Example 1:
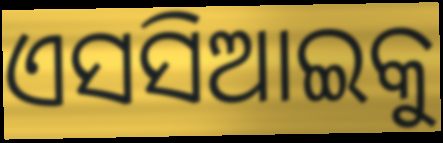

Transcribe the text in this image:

ଏସସିଆଇକୁ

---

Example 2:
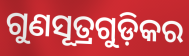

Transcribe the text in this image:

ଗୁଣସୂତ୍ରଗୁଡ଼ିକର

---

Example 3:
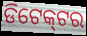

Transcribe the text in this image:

ଡିଟେକ୍‌ଟର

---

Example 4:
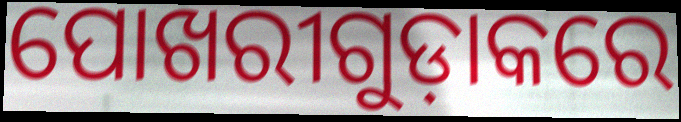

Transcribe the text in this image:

ପୋଖରୀଗୁଡ଼ାକରେ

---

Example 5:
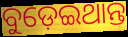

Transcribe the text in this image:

ବୁଡ଼େଇଥାନ୍ତ